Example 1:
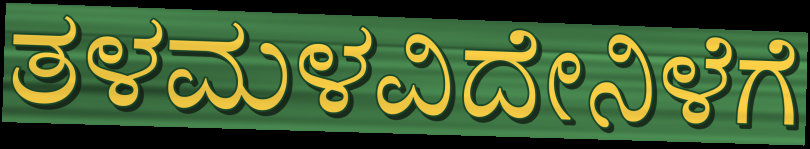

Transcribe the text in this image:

ತಳಮಳವಿದೇನಿಳೆಗೆ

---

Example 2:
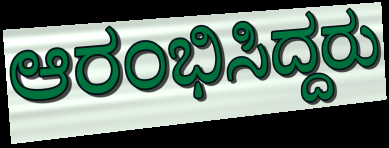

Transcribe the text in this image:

ಆರಂಭಿಸಿದ್ದರು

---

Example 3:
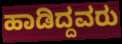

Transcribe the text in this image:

ಹಾಡಿದ್ದವರು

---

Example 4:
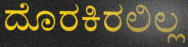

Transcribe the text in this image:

ದೊರಕಿರಲಿಲ್ಲ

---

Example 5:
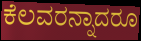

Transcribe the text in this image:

ಕೆಲವರನ್ನಾದರೂ